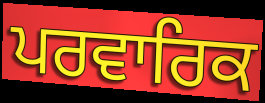
ਪਰਵਾਰਿਕ